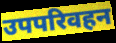
उपपरिवहन